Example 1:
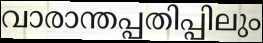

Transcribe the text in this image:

വാരാന്തപ്പതിപ്പിലും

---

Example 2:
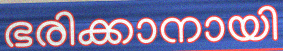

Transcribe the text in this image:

ഭരിക്കാനായി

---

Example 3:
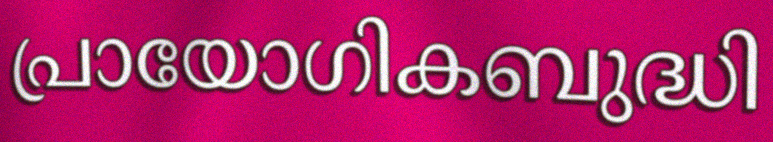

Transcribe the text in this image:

പ്രായോഗികബുദ്ധി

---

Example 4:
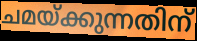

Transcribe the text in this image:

ചമയ്ക്കുന്നതിന്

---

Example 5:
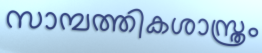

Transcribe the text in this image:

സാമ്പത്തികശാസ്ത്രം